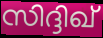
സിദ്ദിഖ്